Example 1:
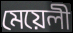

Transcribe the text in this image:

মেয়েলী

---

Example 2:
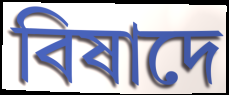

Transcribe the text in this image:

বিষাদে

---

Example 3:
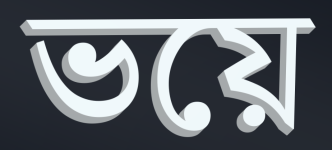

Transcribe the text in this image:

ভয়ে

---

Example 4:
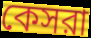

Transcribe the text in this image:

কেসরা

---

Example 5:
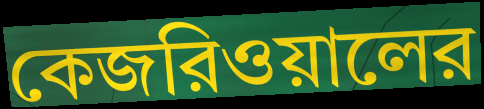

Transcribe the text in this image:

কেজরিওয়ালের